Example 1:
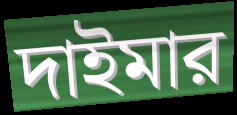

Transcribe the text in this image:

দাইমার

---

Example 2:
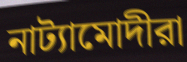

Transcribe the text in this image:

নাট্যামোদীরা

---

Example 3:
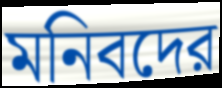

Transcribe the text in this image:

মনিবদের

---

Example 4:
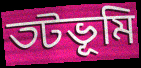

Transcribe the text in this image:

তটভূমি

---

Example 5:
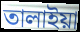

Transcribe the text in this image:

তালাইয়া